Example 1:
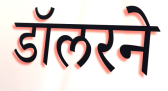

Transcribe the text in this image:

डॉलरने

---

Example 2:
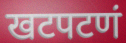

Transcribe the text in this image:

खटपटणं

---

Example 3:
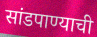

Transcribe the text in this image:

सांडपाण्याची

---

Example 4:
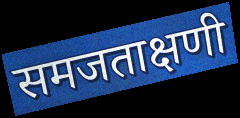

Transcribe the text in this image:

समजताक्षणी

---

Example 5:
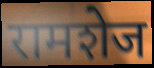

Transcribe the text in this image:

रामशेज